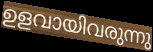
ഉളവായിവരുന്നു